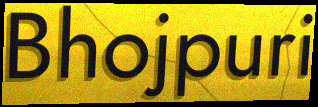
Bhojpuri